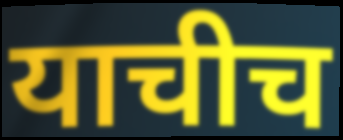
याचीच